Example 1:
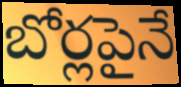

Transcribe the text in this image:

బోర్లపైనే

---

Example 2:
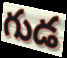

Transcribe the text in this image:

గుడ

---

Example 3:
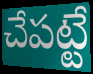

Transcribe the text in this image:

చేపట్టే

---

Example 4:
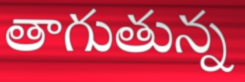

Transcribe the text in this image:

తాగుతున్న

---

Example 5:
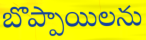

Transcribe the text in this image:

బొప్పాయిలను